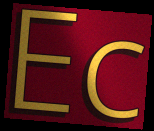
Ec